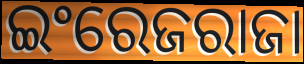
ଇଂରେଜରାଜା